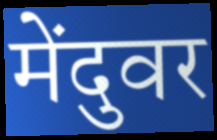
मेंदुवर